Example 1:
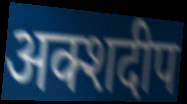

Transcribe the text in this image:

अक्शदीप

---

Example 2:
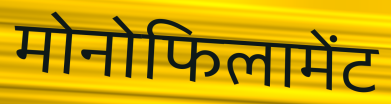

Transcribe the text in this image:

मोनोफिलामेंट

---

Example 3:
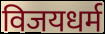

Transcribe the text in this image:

विजयधर्म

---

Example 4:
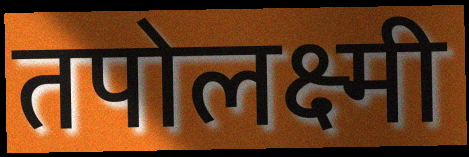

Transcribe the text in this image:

तपोलक्ष्मी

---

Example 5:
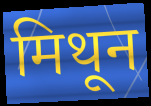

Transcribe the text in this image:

मिथून